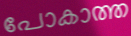
പോകാത്ത